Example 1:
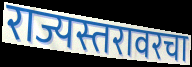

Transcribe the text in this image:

राज्यस्तरावरचा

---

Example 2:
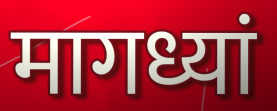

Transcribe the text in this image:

मागध्यां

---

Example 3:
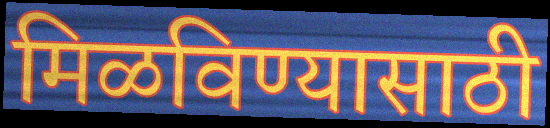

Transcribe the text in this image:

मिळविण्यासाठी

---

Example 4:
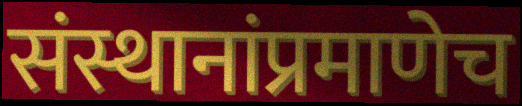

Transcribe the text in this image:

संस्थानांप्रमाणेच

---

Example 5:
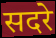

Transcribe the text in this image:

सदरे